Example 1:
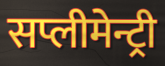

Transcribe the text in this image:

सप्लीमेन्ट्री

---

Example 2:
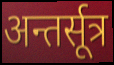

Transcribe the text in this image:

अन्तर्सूत्र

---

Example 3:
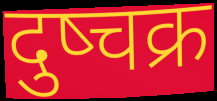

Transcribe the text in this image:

दुष्चक्र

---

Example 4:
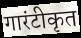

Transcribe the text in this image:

गारंटीकृत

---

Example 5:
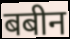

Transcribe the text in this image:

बबीन